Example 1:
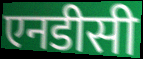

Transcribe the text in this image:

एनडीसी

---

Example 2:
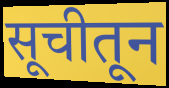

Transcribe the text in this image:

सूचीतून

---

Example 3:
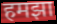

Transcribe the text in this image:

हमझा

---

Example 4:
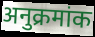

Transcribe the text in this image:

अनुक्रमांक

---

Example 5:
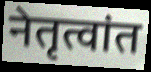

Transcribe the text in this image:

नेतृत्वांत